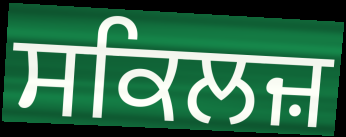
ਸਕਿਲਜ਼